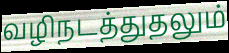
வழிநடத்துதலும்